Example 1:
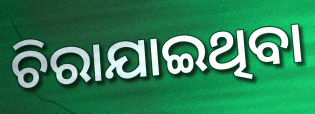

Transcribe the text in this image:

ଚିରାଯାଇଥିବା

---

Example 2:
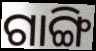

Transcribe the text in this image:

ଗାଙ୍ଗି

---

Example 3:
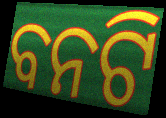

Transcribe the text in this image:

ବନଟି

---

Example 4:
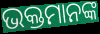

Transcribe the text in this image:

ଭକ୍ତମାନଙ୍କ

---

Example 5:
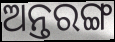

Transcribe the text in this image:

ଅନ୍ତରଙ୍ଗ